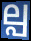
ല്പ